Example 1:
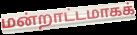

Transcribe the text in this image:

மன்றாட்டமாகக்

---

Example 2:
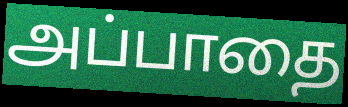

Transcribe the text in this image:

அப்பாதை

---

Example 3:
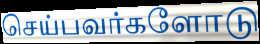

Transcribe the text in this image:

செய்பவர்களோடு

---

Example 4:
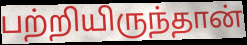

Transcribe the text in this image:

பற்றியிருந்தான்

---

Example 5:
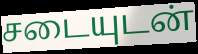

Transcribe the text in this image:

சடையுடன்